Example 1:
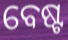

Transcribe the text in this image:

ବେଷ୍ଟ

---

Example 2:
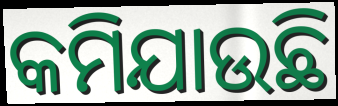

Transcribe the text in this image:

କମିଯାଉଛି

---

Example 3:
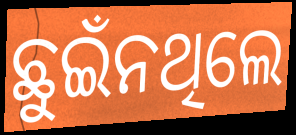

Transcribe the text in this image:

ଛୁଇଁନଥିଲେ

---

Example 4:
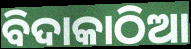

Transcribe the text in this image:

ବିଦାକାଠିଆ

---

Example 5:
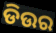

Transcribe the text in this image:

ଡିଉର